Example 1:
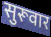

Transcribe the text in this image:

सुरूवार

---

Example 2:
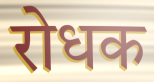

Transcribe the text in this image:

रोधक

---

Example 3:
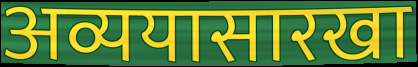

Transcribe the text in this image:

अव्ययासारखा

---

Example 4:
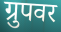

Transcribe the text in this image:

ग्रुपवर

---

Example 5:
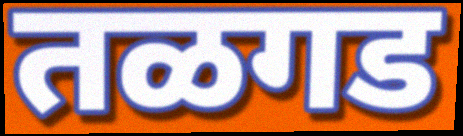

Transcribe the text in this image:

तळगड